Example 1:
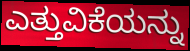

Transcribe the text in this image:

ಎತ್ತುವಿಕೆಯನ್ನು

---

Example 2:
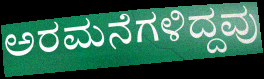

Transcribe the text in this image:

ಅರಮನೆಗಳಿದ್ದವು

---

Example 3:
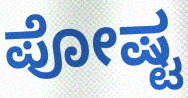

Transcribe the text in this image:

ಪೋಷ್ಟ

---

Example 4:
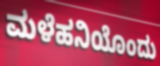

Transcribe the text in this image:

ಮಳೆಹನಿಯೊಂದು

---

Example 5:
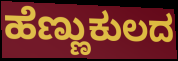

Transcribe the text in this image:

ಹೆಣ್ಣುಕುಲದ